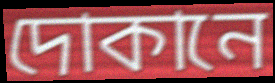
দোকানে